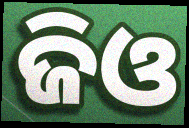
ଜିଓ